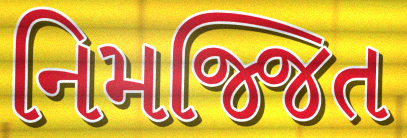
નિમજ્જિત